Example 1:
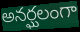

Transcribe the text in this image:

అనర్ఘలంగా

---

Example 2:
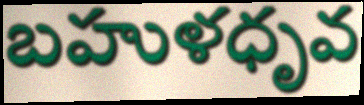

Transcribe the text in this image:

బహుళధృవ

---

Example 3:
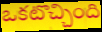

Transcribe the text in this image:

ఒకటొచ్చింది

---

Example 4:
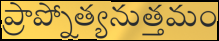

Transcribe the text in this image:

ప్రాప్నోత్యనుత్తమం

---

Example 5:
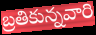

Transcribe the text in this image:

బ్రతికున్నవారి